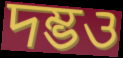
দম্ভও